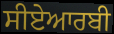
ਸੀਏਆਰਬੀ